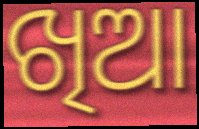
ଖିଆ